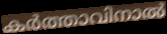
കർത്താവിനാൽ